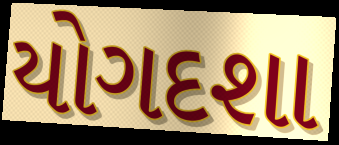
યોગદશા